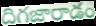
దిగజారాడం